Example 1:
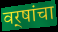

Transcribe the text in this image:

वर्षांचा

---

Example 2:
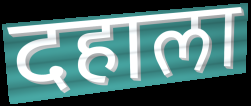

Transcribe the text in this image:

दहाला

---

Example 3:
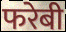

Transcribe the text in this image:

फरेबी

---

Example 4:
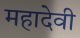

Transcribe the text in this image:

महादेवी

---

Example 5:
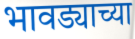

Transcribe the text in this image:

भावड्याच्या